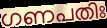
ഗണപതിഃ